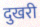
दुखरी